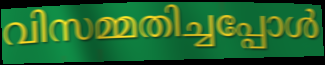
വിസമ്മതിച്ചപ്പോൾ